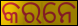
କରନେ